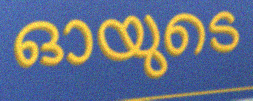
ഓയുടെ